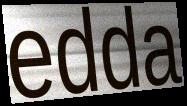
edda